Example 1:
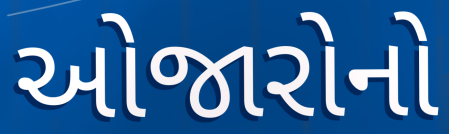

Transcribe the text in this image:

ઓજારોનો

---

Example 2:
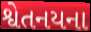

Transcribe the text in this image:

શ્વેતનયના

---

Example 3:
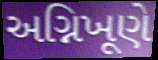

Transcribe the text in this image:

અગ્નિખૂણે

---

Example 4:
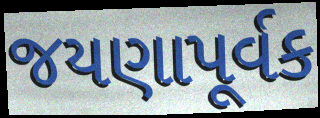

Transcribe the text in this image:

જયણાપૂર્વક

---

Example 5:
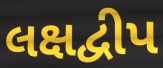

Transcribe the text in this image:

લક્ષદ્વીપ